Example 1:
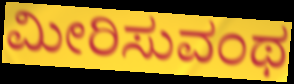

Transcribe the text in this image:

ಮೀರಿಸುವಂಥ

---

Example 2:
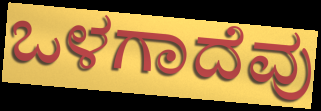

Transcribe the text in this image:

ಒಳಗಾದೆವು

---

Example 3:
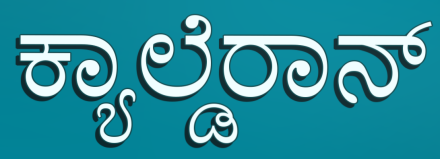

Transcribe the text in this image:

ಕ್ಯಾಲ್ಡೆರಾನ್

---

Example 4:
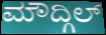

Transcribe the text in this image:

ಮೌದ್ಗಿಲ್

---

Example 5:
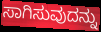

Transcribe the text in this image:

ಸಾಗಿಸುವುದನ್ನು